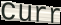
curr